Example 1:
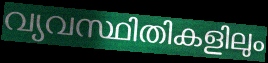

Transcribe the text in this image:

വ്യവസ്ഥിതികളിലും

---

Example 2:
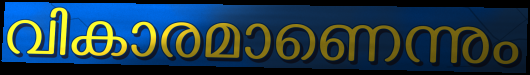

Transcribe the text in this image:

വികാരമാണെന്നും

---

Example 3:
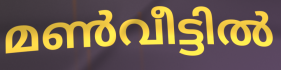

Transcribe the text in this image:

മൺവീട്ടിൽ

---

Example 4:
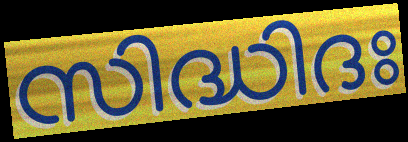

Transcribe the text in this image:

സിദ്ധിദഃ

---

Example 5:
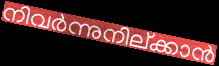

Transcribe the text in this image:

നിവർന്നുനില്ക്കാൻ